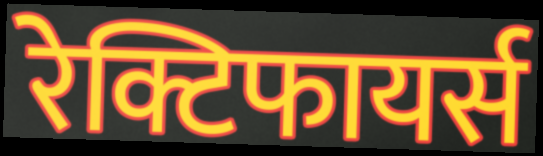
रेक्टिफायर्स